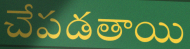
చేపడతాయి